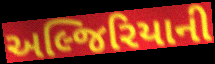
અલ્જિરિયાની